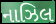
નાઝિલ